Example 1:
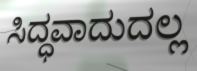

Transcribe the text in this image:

ಸಿದ್ಧವಾದುದಲ್ಲ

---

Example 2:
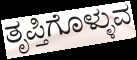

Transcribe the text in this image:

ತೃಪ್ತಿಗೊಳ್ಳುವ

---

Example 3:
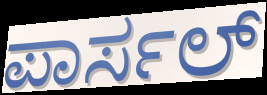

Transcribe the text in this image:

ಪಾರ್ಸಲ್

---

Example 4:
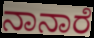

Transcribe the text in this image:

ನಾನಾರೆ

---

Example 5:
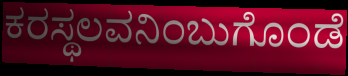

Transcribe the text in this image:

ಕರಸ್ಥಲವನಿಂಬುಗೊಂಡೆ